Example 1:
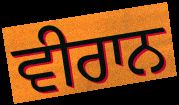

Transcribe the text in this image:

ਵੀਰਾਨ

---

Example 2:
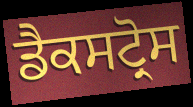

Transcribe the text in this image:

ਡੈਕਸਟ੍ਰੋਸ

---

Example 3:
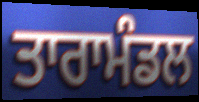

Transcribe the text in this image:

ਤਾਰਾਮੰਡਲ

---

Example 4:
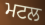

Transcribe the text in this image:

ਮਟਲ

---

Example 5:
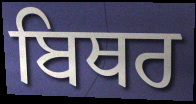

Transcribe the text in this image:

ਬਿਥਰ